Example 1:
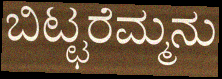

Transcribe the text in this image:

ಬಿಟ್ಟರೆಮ್ಮನು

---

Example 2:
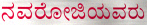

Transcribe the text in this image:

ನವರೋಜಿಯವರು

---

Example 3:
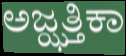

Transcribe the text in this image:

ಅಜ್ಝತ್ತಿಕಾ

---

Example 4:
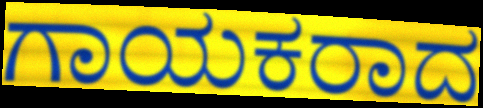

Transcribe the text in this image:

ಗಾಯಕರಾದ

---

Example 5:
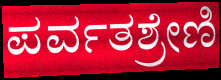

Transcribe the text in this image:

ಪರ್ವತಶ್ರೇಣಿ